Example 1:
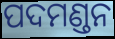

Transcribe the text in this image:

ପଦମଣ୍ଡନ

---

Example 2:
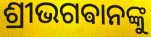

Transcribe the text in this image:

ଶ୍ରୀଭଗଵାନଙ୍କୁ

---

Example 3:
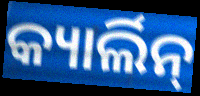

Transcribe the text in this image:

କ୍ୟାର୍ଲିନ୍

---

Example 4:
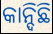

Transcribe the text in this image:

କାନ୍ଦିଛି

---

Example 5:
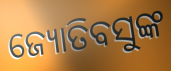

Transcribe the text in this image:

ଜ୍ୟୋତିବସୁଙ୍କ